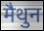
मैथुन